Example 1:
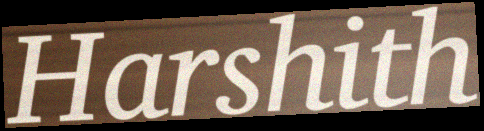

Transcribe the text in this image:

Harshith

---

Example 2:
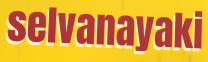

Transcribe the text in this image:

selvanayaki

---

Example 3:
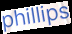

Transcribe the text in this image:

phillips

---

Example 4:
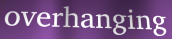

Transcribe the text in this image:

overhanging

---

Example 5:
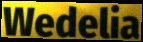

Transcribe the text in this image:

Wedelia